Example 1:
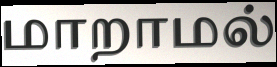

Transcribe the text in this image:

மாறாமல்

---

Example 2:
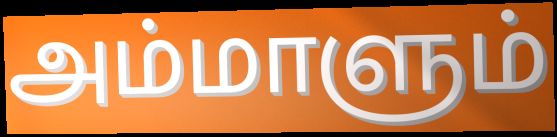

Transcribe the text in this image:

அம்மாளும்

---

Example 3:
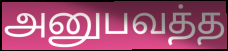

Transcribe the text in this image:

அனுபவத்த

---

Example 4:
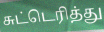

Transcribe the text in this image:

சுட்டெரித்து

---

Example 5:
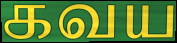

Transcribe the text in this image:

கவய